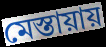
মেস্তায়ায়